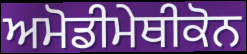
ਅਮੋਡੀਮੇਥੀਕੋਨ